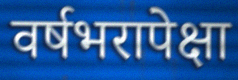
वर्षभरापेक्षा